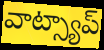
వాట్స్యాప్